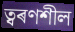
ত্বৰণশীল